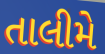
તાલીમે